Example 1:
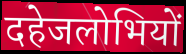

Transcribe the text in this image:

दहेजलोभियों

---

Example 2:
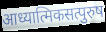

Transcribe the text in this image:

आध्यात्मिकसत्पुरुष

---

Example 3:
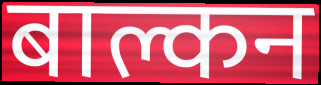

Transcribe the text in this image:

बाल्कन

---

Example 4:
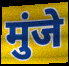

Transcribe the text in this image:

मुंजे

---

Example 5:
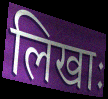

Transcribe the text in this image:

लिखाः